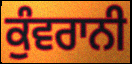
ਕੁੰਵਰਾਨੀ